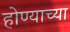
होण्‍याच्‍या